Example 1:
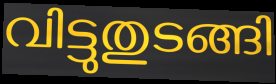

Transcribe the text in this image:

വിട്ടുതുടങ്ങി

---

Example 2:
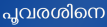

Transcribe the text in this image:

പൂവരശിനെ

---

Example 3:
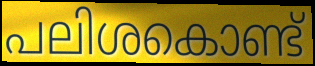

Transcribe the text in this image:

പലിശകൊണ്ട്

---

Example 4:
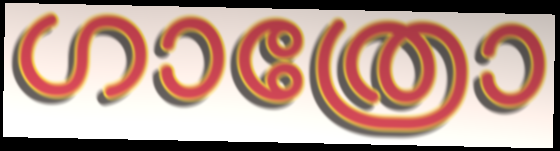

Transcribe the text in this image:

ഗാത്രോ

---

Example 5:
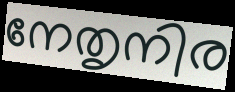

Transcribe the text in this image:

നേതൃനിര